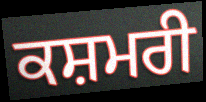
ਕਸ਼ਮਰੀ